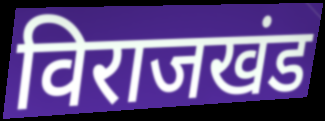
विराजखंड